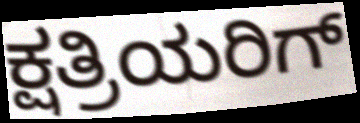
ಕ್ಷತ್ರಿಯರಿಗ್